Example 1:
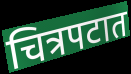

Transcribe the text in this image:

चित्रपटात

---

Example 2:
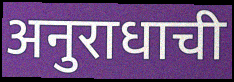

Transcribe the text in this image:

अनुराधाची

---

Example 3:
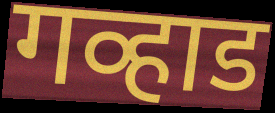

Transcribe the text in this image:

गव्हाड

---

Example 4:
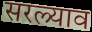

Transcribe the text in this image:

सरल्याव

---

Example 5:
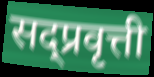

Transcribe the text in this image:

सद्प्रवृत्ती